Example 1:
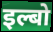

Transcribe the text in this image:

इल्बो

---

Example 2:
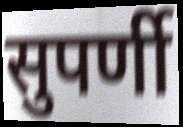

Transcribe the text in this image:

सुपर्णी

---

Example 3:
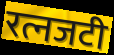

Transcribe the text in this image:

रत्नजटी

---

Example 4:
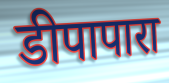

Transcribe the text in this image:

डीपापारा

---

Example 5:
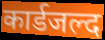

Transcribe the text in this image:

कार्डजल्द